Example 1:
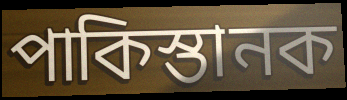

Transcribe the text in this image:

পাকিস্তানক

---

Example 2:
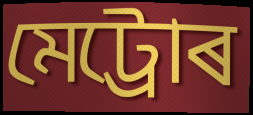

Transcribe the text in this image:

মেট্ৰোৰ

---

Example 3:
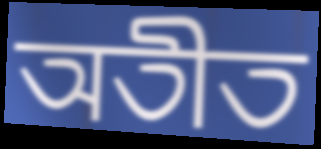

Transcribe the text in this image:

অতীত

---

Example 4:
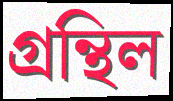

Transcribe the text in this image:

গ্ৰন্থিল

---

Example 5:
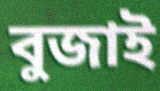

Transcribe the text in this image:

বুজাই